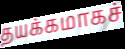
தயக்கமாகச்